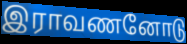
இராவணனோடு